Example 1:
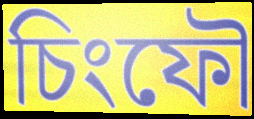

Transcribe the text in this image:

চিংফৌ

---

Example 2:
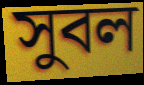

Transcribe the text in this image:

সুবল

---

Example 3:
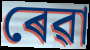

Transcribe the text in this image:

ৰেৱা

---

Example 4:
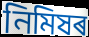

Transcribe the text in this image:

নিমিষৰ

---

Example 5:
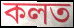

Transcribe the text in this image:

কলত